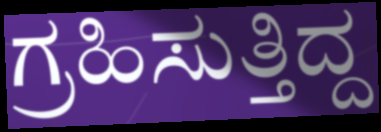
ಗ್ರಹಿಸುತ್ತಿದ್ದ